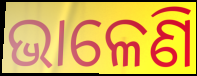
ଭାଳେଣି